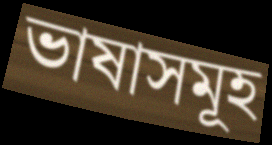
ভাষাসমূহ